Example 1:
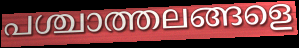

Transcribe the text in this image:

പശ്ചാത്തലങ്ങളെ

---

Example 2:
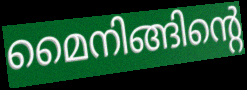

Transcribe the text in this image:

മൈനിങ്ങിന്റെ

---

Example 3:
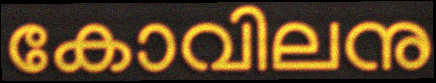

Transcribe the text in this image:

കോവിലനു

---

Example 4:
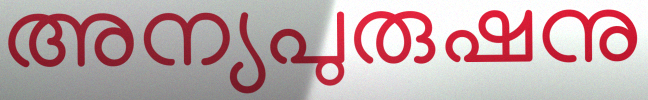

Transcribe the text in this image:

അന്യപുരുഷനു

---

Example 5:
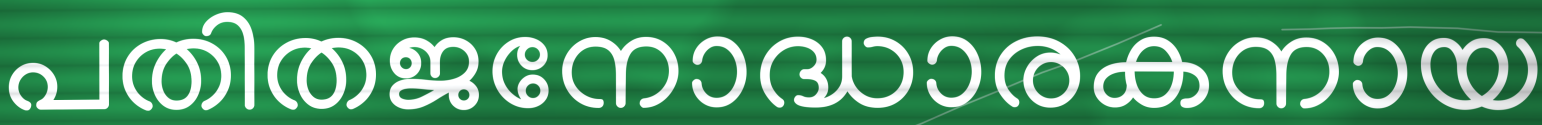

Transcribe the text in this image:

പതിതജനോദ്ധാരകനായ